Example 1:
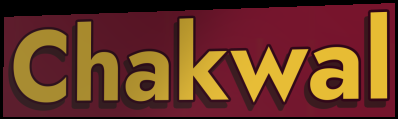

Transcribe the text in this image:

Chakwal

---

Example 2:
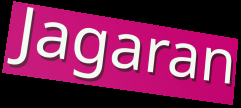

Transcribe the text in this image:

Jagaran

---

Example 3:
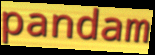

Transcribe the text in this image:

pandam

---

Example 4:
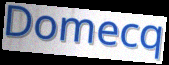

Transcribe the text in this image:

Domecq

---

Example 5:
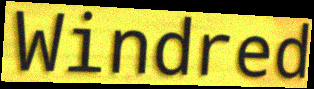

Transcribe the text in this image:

Windred